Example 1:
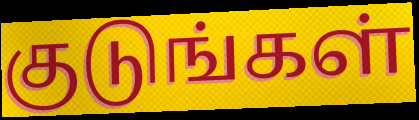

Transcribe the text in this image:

குடுங்கள்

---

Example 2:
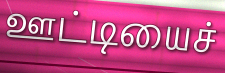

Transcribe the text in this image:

ஊட்டியைச்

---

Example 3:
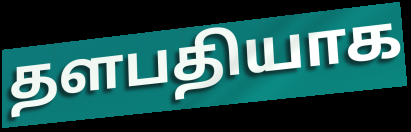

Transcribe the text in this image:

தளபதியாக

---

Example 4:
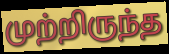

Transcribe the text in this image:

முற்றிருந்த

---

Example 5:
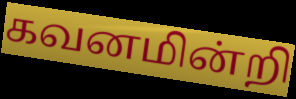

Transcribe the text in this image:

கவனமின்றி